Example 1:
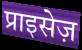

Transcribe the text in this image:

प्राइसेज़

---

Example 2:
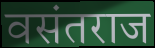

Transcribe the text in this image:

वसंतराज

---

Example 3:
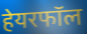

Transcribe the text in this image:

हेयरफॉल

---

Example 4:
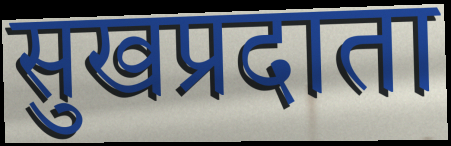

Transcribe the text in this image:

सुखप्रदाता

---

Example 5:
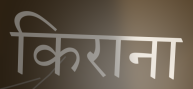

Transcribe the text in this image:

किराना